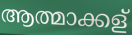
ആത്മാക്കള്